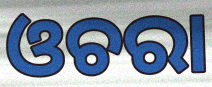
ଓଚରା